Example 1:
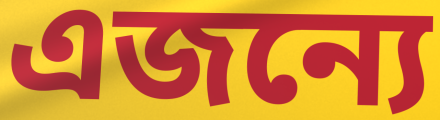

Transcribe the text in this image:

এজন্যে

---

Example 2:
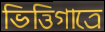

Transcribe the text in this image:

ভিত্তিগাত্রে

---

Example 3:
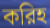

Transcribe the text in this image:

করিহ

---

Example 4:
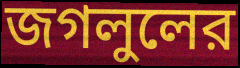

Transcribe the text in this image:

জগলুলের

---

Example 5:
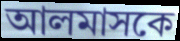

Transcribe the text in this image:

আলমাসকে